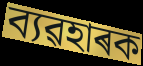
ব্যৱহাৰক